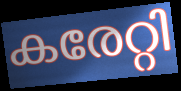
കരേറ്റി